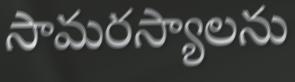
సామరస్యాలను